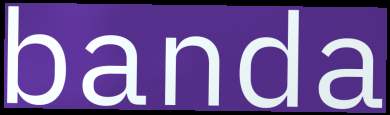
banda